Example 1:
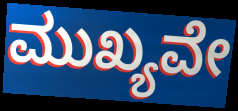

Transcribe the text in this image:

ಮುಖ್ಯವೇ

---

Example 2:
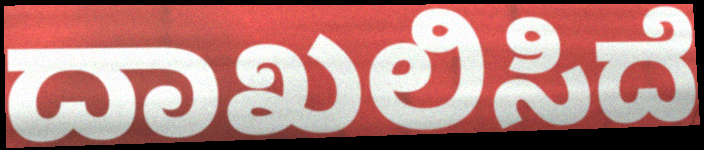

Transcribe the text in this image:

ದಾಖಲಿಸಿದೆ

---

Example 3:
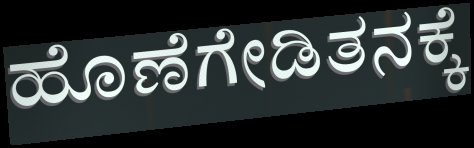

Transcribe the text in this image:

ಹೊಣೆಗೇಡಿತನಕ್ಕೆ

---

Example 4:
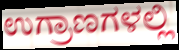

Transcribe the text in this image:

ಉಗ್ರಾಣಗಳಲ್ಲಿ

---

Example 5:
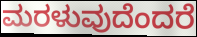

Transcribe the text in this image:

ಮರಳುವುದೆಂದರೆ